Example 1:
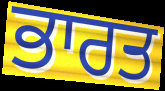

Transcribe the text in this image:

ਭਾਰਤ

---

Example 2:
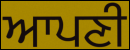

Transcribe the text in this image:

ਆਪਣੀ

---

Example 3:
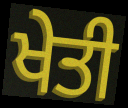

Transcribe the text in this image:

ਖੇਤੀ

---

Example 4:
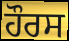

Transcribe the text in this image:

ਹੌਰਸ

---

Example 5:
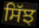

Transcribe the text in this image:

ਸਿੱਝ